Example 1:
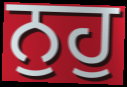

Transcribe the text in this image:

ਨੁਹੁ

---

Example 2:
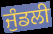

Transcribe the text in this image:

ਜੁੰਡਲੀ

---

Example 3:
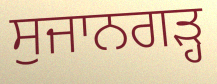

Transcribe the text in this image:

ਸੁਜਾਨਗੜ੍ਹ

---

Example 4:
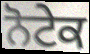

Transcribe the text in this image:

ਨੋਟੇਕ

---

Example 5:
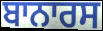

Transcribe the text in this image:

ਬਾਨਾਰਸ